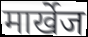
मार्खेज